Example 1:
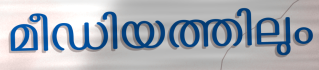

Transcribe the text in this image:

മീഡിയത്തിലും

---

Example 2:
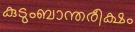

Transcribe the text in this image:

കുടുംബാന്തരീക്ഷം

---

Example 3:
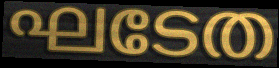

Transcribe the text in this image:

ഘടേത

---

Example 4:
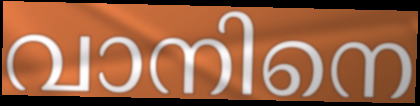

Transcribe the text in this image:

വാനിനെ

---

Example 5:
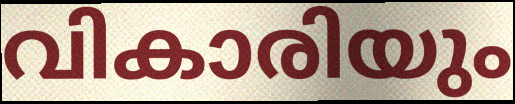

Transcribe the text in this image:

വികാരിയും